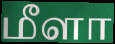
மீளா